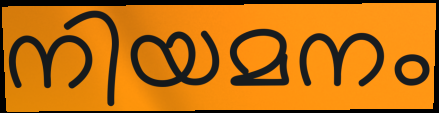
നിയമനം